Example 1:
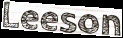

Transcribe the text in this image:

Leeson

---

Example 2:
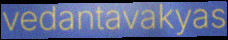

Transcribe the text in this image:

vedantavakyas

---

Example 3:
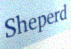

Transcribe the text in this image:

Sheperd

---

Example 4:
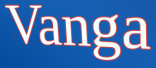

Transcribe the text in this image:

Vanga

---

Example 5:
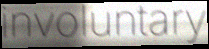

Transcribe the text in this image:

involuntary